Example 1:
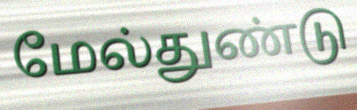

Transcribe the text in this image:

மேல்துண்டு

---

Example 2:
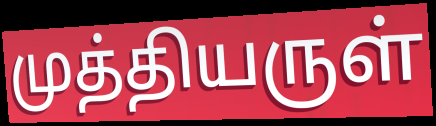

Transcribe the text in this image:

முத்தியருள்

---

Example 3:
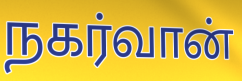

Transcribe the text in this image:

நகர்வான்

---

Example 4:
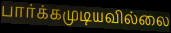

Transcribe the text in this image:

பார்க்கமுடியவில்லை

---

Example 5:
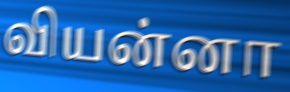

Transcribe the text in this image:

வியன்னா